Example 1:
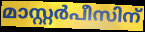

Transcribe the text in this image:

മാസ്റ്റർപീസിന്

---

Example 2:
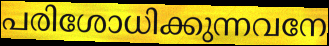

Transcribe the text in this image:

പരിശോധിക്കുന്നവനേ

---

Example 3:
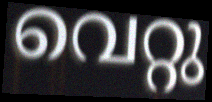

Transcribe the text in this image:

വെറ്റു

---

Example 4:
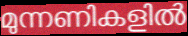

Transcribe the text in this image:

മുന്നണികളിൽ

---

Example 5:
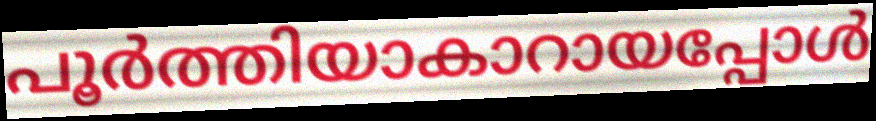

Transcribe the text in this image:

പൂർത്തിയാകാറായപ്പോൾ